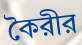
কৈরীর